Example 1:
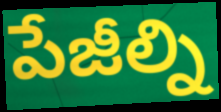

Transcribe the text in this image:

పేజీల్ని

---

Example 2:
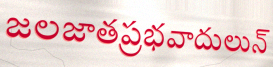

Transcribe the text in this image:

జలజాతప్రభవాదులున్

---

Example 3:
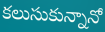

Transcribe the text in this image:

కలుసుకున్నానో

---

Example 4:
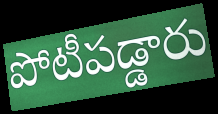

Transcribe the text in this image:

పోటీపడ్డారు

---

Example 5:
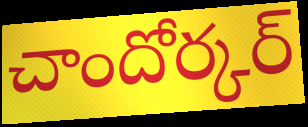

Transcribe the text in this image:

చాందోర్కర్